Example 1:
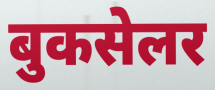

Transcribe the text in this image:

बुकसेलर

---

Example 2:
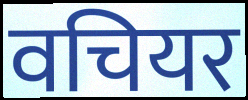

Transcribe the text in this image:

वचियर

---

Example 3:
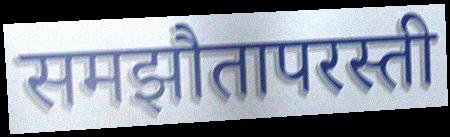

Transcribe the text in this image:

समझौतापरस्ती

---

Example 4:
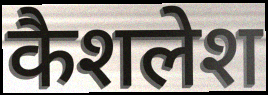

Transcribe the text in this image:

कैशलेश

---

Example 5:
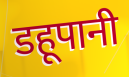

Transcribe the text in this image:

डहूपानी